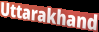
Uttarakhand